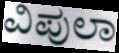
ವಿಪುಲಾ